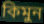
কিমুন